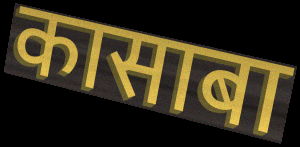
कासाबा